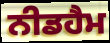
ਨੀਡਹੈਮ